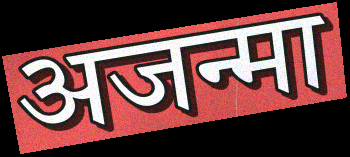
अजन्‍मा